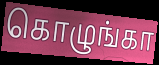
கொழுங்கா